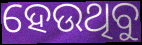
ହେଉଥିବୁ